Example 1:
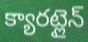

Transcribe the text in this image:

క్యారట్లైన్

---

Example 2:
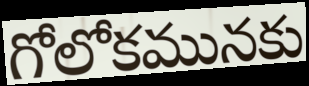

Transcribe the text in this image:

గోలోకమునకు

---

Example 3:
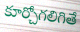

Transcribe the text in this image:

కూర్చోగలిగితే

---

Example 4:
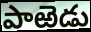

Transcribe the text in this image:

పాఱెడు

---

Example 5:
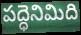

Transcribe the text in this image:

పద్ధెనిమిది